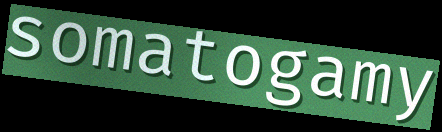
somatogamy